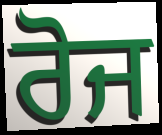
ਰੋਜ